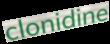
clonidine